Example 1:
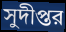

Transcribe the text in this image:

সুদীপ্তর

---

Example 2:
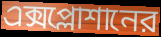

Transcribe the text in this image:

এক্সপ্লোশানের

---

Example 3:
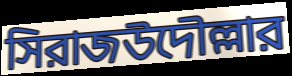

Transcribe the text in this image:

সিরাজউদৌল্লার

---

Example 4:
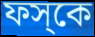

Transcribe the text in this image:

ফস্‌কে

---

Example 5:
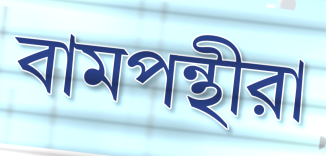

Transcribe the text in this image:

বামপন্থীরা